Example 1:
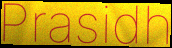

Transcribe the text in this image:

Prasidh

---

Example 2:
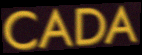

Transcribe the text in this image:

CADA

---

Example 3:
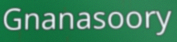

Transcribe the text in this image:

Gnanasoory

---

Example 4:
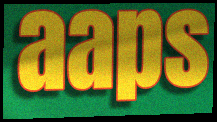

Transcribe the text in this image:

aaps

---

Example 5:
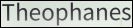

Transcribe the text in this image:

Theophanes